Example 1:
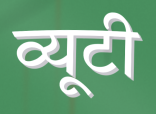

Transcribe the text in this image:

व्यूटी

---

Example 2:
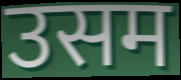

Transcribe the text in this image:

उसम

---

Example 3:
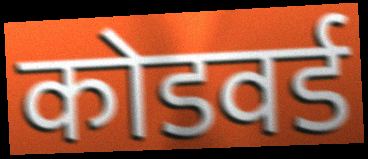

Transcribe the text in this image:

कोडवर्ड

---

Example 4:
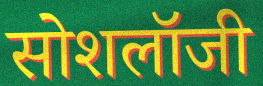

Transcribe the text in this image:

सोशलॉजी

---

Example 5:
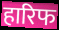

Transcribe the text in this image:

हारिफ